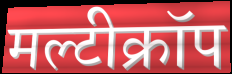
मल्टीक्रॉप